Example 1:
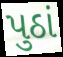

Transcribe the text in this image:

પુઠાં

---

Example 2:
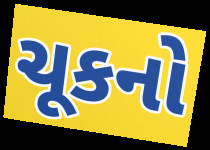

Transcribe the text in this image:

ચૂકનો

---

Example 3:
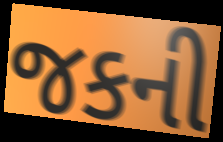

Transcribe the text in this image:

જકની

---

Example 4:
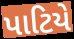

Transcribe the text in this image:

પાટિયે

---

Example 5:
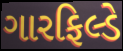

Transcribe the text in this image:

ગારફિલ્ડે